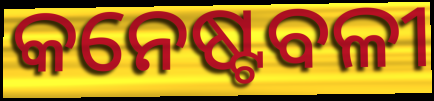
କନେଷ୍ଟବଳୀ